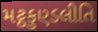
મટ્ઠકુણ્ડલીતિ